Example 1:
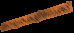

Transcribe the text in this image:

താഴ്വരകളിലേക്ക്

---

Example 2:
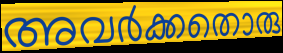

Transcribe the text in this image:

അവർക്കതൊരു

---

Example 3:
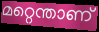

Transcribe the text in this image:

മറ്റെന്താണ്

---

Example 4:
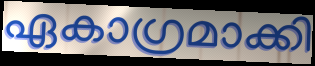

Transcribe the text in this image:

ഏകാഗ്രമാക്കി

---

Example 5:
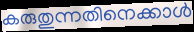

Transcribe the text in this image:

കരുതുന്നതിനെക്കാൾ